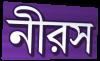
নীরস